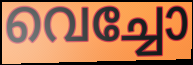
വെച്ചോ